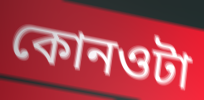
কোনওটা